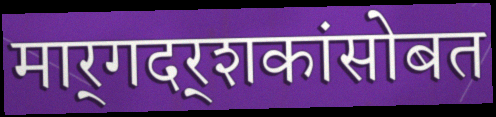
मार्गदर्शकांसोबत